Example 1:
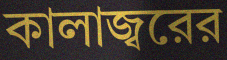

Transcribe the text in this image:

কালাজ্বরের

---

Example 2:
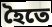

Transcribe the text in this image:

হৈতে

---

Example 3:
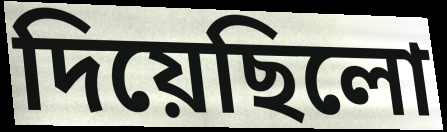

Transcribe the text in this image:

দিয়েছিলো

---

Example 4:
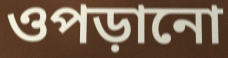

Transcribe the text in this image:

ওপড়ানো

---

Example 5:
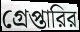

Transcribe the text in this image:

গ্রেপ্তারির